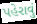
પહેરાવું